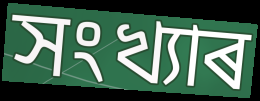
সংখ্যাৰ